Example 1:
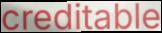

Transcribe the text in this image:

creditable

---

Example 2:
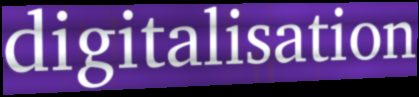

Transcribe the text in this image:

digitalisation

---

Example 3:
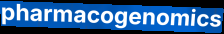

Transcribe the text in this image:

pharmacogenomics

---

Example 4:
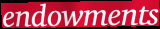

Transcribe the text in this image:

endowments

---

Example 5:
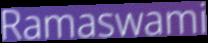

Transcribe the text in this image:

Ramaswami